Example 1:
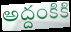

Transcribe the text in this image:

అద్దంకికి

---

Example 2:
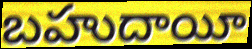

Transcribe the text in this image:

బహుదాయీ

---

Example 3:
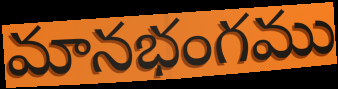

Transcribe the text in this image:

మానభంగము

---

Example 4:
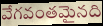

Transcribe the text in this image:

వేగవంతమైనది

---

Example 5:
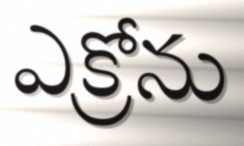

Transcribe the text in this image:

ఎక్రోను